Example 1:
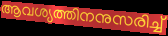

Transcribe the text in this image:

ആവശ്യത്തിനനുസരിച്ച്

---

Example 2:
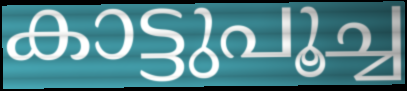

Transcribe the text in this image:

കാട്ടുപൂച്ച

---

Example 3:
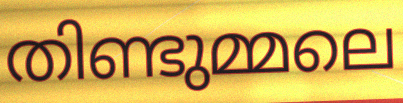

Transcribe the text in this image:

തിണ്ടുമ്മലെ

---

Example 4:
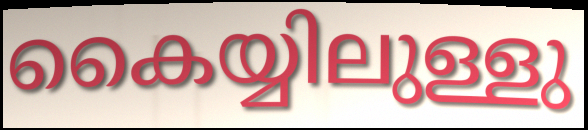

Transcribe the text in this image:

കൈയ്യിലുള്ളു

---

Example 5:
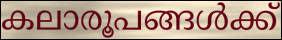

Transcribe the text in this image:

കലാരൂപങ്ങൾക്ക്